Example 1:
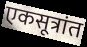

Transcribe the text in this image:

एकसूत्रांत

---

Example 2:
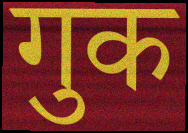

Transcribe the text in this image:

गुक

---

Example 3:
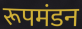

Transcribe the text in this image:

रूपमंडन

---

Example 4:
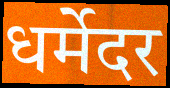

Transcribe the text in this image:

धर्मेदर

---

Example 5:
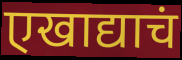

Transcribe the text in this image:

एखाद्याचं